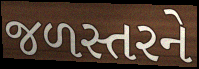
જળસ્તરને